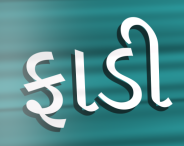
ફાડી